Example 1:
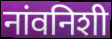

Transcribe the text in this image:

नांवनिशी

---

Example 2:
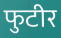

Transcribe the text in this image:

फुटीर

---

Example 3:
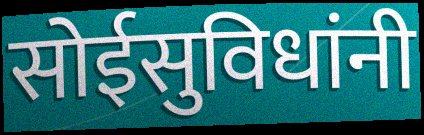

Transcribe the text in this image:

सोईसुविधांनी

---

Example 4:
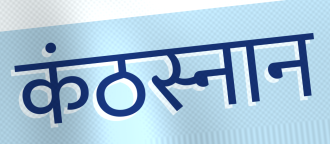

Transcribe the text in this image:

कंठस्नान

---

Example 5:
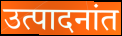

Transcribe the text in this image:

उत्पादनांत